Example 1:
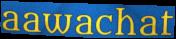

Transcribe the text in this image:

aawachat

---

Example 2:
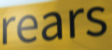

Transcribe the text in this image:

rears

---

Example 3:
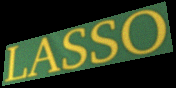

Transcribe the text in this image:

LASSO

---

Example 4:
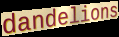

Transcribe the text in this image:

dandelions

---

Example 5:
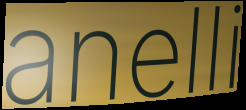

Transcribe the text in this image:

anelli